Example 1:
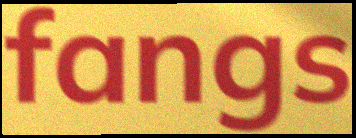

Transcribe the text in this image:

fangs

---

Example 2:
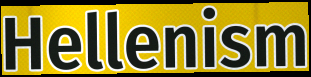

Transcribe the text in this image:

Hellenism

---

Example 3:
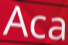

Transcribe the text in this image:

Aca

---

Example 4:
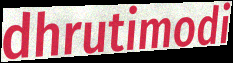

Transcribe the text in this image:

dhrutimodi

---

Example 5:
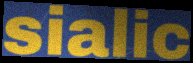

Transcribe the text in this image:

sialic